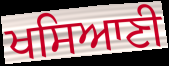
ਖਸਿਆਣੀ